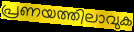
പ്രണയത്തിലാവുക